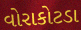
વોરાકોટડા